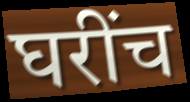
घरींच